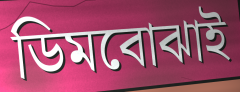
ডিমবোঝাই